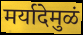
मर्यादेमुळं